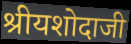
श्रीयशोदाजी